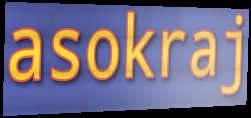
asokraj